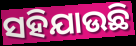
ସହିଯାଉଛି